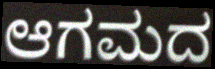
ಆಗಮದ